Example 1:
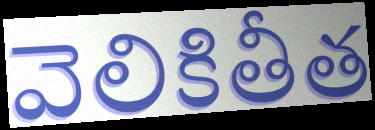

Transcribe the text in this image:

వెలికితీత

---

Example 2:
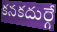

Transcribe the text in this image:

కనకదుర్గే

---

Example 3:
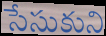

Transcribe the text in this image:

సేసుకుని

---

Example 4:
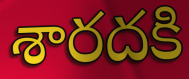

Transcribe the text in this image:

శారదకి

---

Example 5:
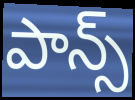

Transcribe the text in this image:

పాన్స్